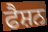
ਫੈਸ਼ਨ